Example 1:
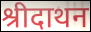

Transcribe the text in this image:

श्रीदाथन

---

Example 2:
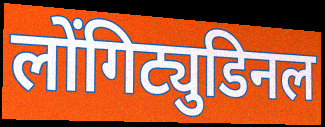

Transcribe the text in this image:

लोंगिट्युडिनल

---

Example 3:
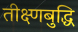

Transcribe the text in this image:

तीक्ष्णबुद्धि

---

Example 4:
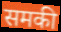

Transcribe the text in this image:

समकी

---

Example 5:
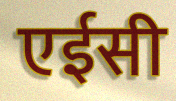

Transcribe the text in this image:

एईसी